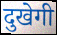
दुखेगी